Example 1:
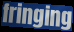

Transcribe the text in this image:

fringing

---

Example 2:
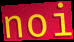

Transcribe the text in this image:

noi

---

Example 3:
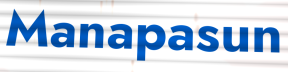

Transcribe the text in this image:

Manapasun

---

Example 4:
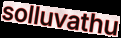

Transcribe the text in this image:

solluvathu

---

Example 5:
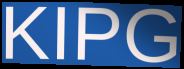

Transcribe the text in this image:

KIPG